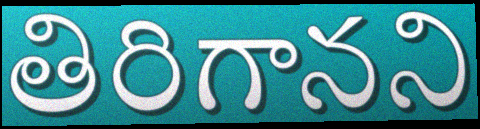
తిరిగానని